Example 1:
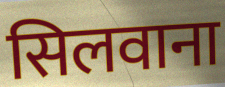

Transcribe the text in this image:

सिलवाना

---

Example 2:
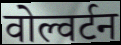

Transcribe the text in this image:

वोल्वर्टन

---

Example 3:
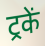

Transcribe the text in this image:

ट्रकें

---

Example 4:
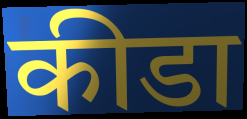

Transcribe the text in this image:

कीडा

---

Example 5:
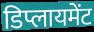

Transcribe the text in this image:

डिप्लायमेंट